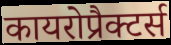
कायरोप्रैक्टर्स